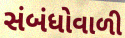
સંબંધોવાળી